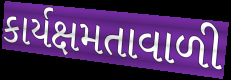
કાર્યક્ષમતાવાળી